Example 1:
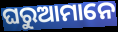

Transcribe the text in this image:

ଘରୁଆମାନେ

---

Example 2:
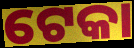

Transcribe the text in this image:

ଟେକା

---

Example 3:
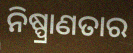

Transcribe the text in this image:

ନିଷ୍ପ୍ରାଣତାର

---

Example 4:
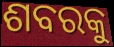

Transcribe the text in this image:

ଶବରକୁ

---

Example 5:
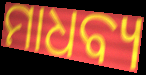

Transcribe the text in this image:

ମାଧବ୍ୟ